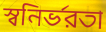
স্বনির্ভরতা